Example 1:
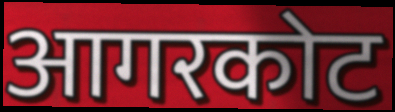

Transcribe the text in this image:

आगरकोट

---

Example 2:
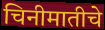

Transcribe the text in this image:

चिनीमातीचे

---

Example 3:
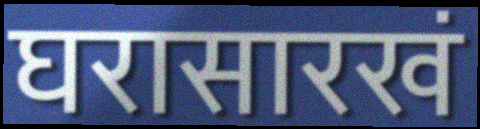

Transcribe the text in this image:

घरासारखं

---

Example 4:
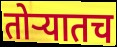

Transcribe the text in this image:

तोऱ्यातच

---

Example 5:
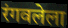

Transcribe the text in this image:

रंगवलेला